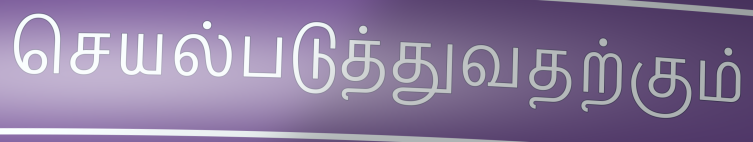
செயல்படுத்துவதற்கும்